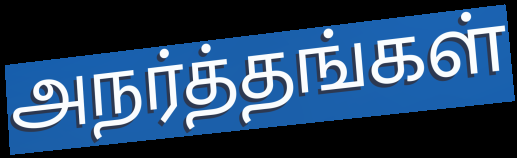
அநர்த்தங்கள்